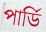
পার্ডি